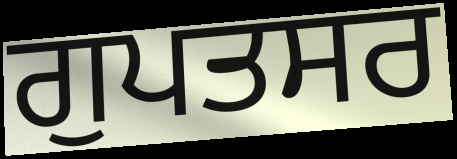
ਗੁਪਤਸਰ